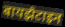
बायझँटाइन